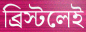
ব্রিস্টলেই